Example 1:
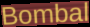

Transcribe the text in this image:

Bombal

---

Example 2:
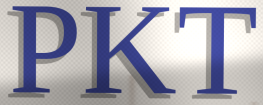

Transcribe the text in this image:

PKT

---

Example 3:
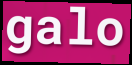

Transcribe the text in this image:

galo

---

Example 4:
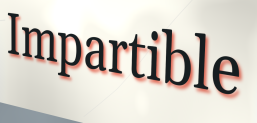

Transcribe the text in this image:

Impartible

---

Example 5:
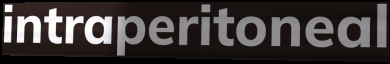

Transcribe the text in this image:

intraperitoneal